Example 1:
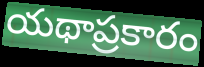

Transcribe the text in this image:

యథాప్రకారం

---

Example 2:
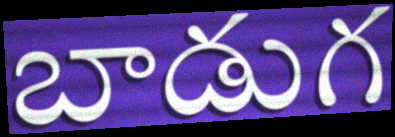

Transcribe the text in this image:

బాడుగ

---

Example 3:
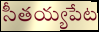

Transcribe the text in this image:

సీతయ్యపేట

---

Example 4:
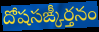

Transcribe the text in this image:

దోషసఙ్కీర్తనం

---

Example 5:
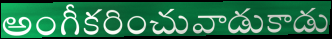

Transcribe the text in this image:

అంగీకరించువాడుకాడు